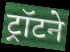
ट्रॉटने